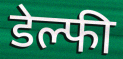
डेल्फी